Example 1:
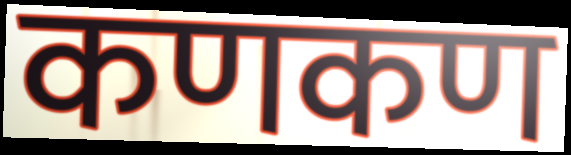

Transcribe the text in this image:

कणकण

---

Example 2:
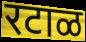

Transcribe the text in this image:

रटाळ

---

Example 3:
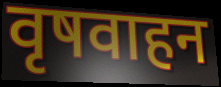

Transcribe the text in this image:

वृषवाहन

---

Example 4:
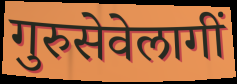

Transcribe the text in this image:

गुरुसेवेलागीं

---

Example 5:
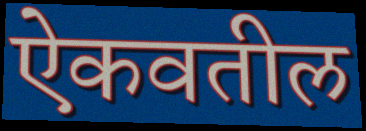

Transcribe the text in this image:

ऐकवतील